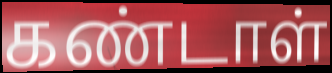
கண்டாள்